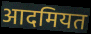
आदमियत